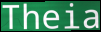
Theia